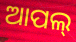
ଆପଲ୍